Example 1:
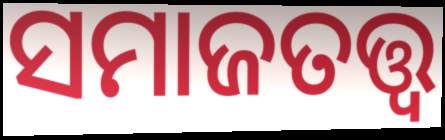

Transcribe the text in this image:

ସମାଜତତ୍ତ୍ୱ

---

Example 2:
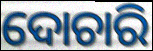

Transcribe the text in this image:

ଦୋଚାରି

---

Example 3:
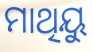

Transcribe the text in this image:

ମାଥିୟୁ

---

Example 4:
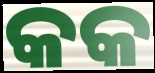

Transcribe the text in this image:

କକ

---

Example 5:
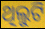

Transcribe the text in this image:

ଥିଲୁଟି